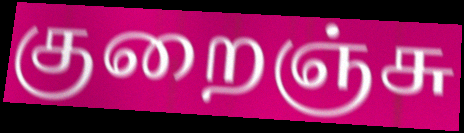
குறைஞ்சு